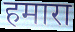
हमारा